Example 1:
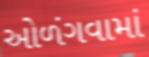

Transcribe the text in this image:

ઓળંગવામાં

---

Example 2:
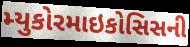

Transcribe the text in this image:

મ્યુકોરમાઇકોસિસની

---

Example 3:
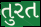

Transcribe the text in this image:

તુરત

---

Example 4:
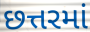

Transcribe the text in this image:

છત્તરમાં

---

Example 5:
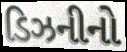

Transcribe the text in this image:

ડિઝનીનો